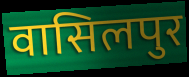
वासिलपुर